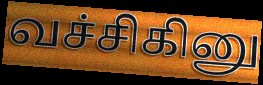
வச்சிகினு